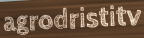
agrodristitv